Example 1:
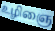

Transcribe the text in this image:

உழிஞை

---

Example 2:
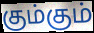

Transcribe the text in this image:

கும்கும்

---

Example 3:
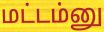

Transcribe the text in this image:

மட்டம்னு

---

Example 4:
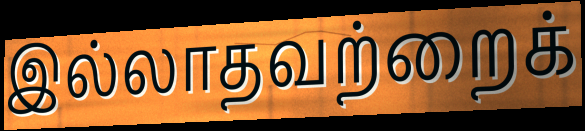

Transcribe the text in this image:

இல்லாதவற்றைக்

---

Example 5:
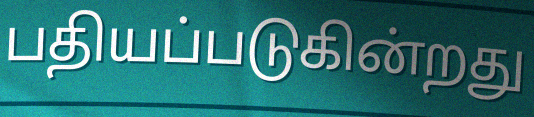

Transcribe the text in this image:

பதியப்படுகின்றது